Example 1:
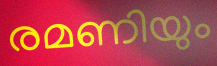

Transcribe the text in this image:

രമണിയും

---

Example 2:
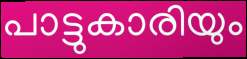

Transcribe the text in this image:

പാട്ടുകാരിയും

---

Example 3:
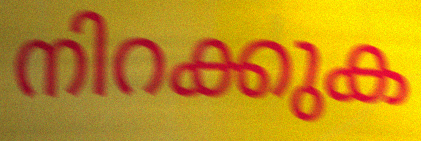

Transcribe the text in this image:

നിറക്കുക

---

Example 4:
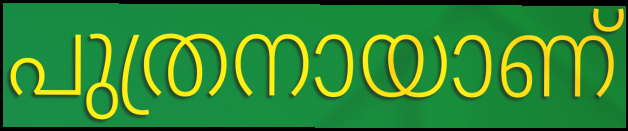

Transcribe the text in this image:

പുത്രനായാണ്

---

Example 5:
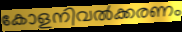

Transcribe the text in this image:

കോളനിവൽക്കരണം